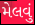
મેલવું